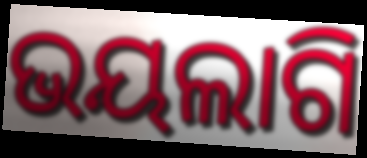
ଭୟଲାଗି